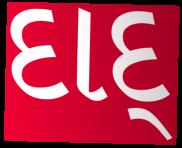
દાદ્